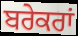
ਬਰੇਕਰਾਂ